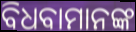
ବିଧବାମାନଙ୍କ